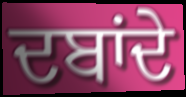
ਦਬਾਂਦੇ